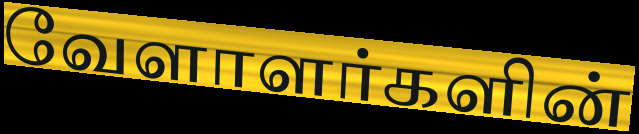
வேளாளர்களின்